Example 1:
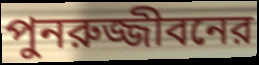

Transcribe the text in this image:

পুনরুজ্জীবনের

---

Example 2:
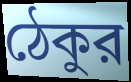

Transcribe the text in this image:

ঠেকুর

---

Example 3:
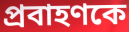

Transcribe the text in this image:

প্রবাহণকে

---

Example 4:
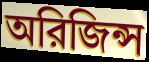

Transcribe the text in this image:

অরিজিন্স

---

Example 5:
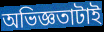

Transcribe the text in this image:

অভিজ্ঞতাটাই